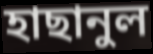
হাছানুল